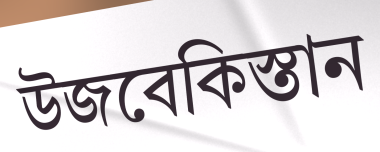
উজবেকিস্তান